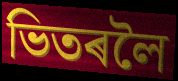
ভিতৰলৈ